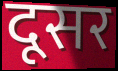
दूसर